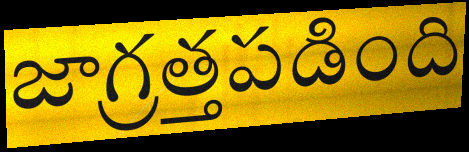
జాగ్రత్తపడింది